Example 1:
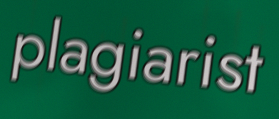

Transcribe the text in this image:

plagiarist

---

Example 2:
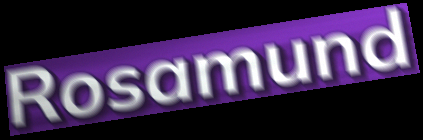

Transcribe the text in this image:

Rosamund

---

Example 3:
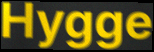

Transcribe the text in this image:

Hygge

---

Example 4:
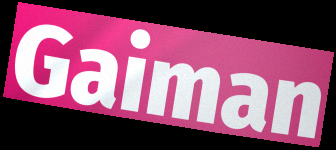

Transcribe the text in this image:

Gaiman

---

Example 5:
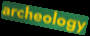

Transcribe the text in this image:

archeology